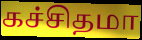
கச்சிதமா